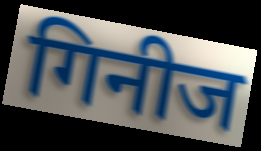
गिनीज